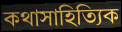
কথাসাহিত্যিক